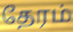
தேரம்